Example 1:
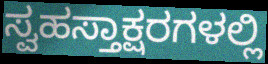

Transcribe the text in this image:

ಸ್ವಹಸ್ತಾಕ್ಷರಗಳಲ್ಲಿ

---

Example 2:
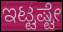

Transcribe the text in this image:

ಇಟ್ಟಷ್ಟೇ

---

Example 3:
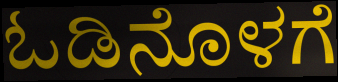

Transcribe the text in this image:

ಓಡಿನೊಳಗೆ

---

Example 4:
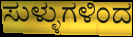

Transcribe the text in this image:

ಸುಳ್ಳುಗಳಿಂದ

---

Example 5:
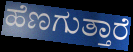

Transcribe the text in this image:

ಹೆಣಗುತ್ತಾರೆ